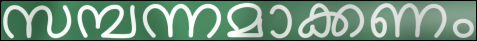
സമ്പന്നമാക്കണം